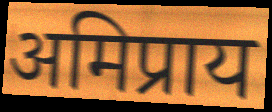
अमिप्राय